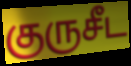
குருசீட